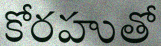
కోరహుతో